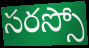
సరస్సో